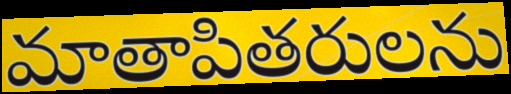
మాతాపితరులను